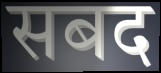
सबद